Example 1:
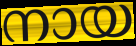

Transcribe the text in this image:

നായ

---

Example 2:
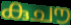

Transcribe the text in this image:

കുചൗ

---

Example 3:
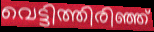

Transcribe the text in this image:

വെട്ടിത്തിരിഞ്ഞ്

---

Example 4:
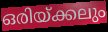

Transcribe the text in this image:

ഒരിയ്ക്കലും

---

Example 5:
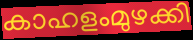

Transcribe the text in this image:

കാഹളംമുഴക്കി